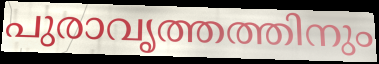
പുരാവൃത്തത്തിനും